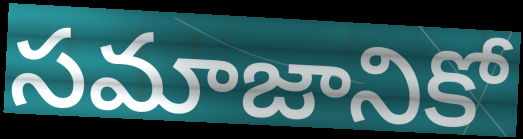
సమాజానికో